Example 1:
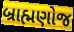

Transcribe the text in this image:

બ્રાહ્મણોજ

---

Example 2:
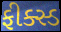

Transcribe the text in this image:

ફીક્સ્ડ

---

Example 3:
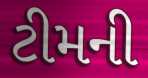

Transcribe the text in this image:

ટીમની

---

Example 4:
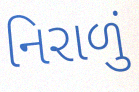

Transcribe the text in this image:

નિરાળું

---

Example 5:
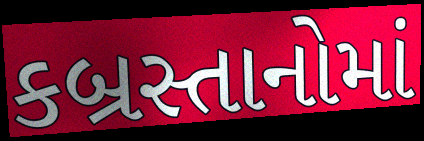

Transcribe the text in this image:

કબ્રસ્તાનોમાં